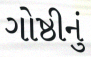
ગોષ્ઠીનું